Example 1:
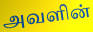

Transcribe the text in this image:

அவளின்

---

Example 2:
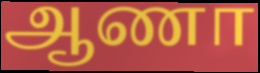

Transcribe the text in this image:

ஆணா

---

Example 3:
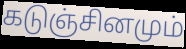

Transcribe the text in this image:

கடுஞ்சினமும்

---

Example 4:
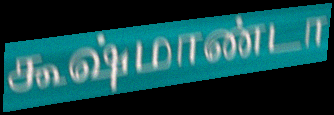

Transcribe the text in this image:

கூஷ்மாண்டா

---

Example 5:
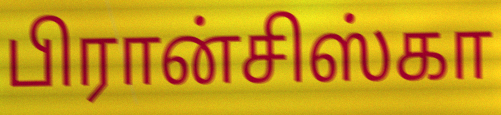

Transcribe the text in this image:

பிரான்சிஸ்கா